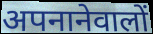
अपनानेवालों